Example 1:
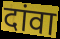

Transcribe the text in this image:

दांवा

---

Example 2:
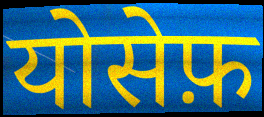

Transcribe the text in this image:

योसेफ़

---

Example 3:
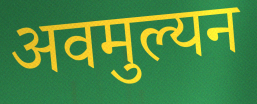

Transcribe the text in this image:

अवमुल्यन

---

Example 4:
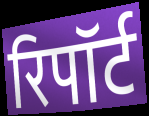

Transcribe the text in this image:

रिपॉर्ट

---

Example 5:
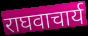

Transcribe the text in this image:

राघवाचार्य